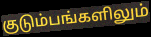
குடும்பங்களிலும்